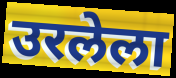
उरलेला